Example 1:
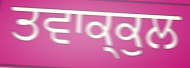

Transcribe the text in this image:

ਤਵਾਕ੍ਕੁਲ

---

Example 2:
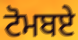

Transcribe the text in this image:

ਟੋਮਬਏ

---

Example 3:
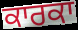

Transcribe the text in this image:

ਕਾਰਕਾ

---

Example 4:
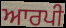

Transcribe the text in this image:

ਆਰਪੀ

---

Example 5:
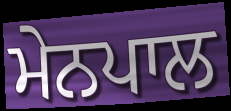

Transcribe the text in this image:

ਮੇਨਪਾਲ